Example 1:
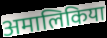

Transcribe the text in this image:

अमालिकिया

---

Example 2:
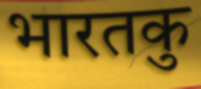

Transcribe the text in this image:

भारतकु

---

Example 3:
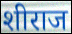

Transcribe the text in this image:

शीराज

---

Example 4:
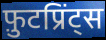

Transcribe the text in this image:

फ़ुटप्रिंट्स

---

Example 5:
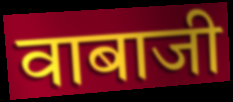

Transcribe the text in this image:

वाबाजी